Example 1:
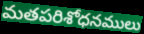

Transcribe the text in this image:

మతపరిశోధనములు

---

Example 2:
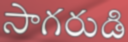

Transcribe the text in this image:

సాగరుడి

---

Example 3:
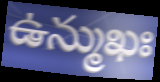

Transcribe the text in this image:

ఉన్ముఖః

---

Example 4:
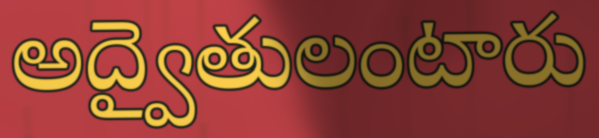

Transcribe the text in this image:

అద్వైతులంటారు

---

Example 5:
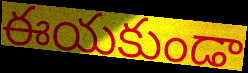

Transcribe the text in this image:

ఈయకుండా